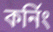
কর্নিং